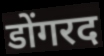
डोंगरद